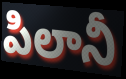
పిలానీ